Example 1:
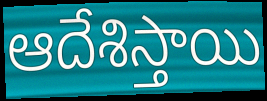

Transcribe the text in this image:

ఆదేశిస్తాయి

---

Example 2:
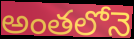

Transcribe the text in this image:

అంతలోనె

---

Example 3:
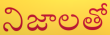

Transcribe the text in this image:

నిజాలతో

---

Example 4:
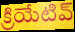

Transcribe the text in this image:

క్రియేటివ్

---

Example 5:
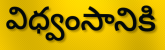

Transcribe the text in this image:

విధ్వంసానికి